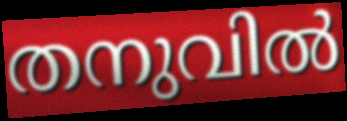
തനുവിൽ